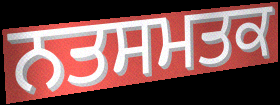
ਨਤਸਮਤਕ